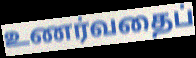
உணர்வதைப்